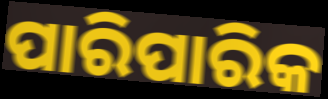
ପାରିପାରିକ